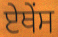
ਏਥੇੰਸ